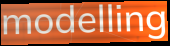
modelling